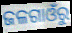
ଜଳଗାଓଁରୁ